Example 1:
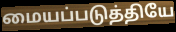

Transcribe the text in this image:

மையப்படுத்தியே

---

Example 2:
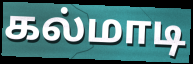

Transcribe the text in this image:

கல்மாடி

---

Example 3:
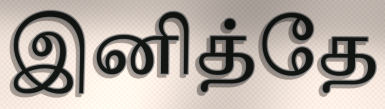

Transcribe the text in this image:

இனித்தே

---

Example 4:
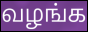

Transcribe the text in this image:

வழங்க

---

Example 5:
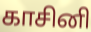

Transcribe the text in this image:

காசினி